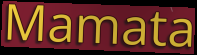
Mamata